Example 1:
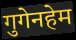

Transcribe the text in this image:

गुगेनहेम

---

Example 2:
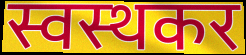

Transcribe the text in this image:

स्वस्थकर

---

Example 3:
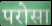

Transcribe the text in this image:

परोसा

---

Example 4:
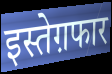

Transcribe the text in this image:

इस्तेग़फार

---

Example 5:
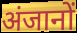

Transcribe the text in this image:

अंजानों